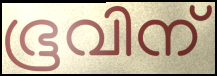
ഭൂവിന്